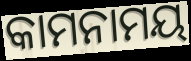
କାମନାମୟ